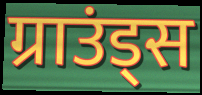
ग्राउंड्स